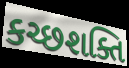
કચ્છશક્તિ